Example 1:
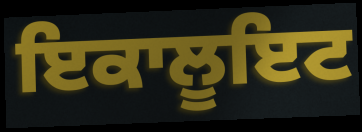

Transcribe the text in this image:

ਇਕਾਲੂਇਟ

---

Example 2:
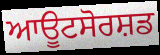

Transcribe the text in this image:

ਆਊਟਸੋਰਸ਼ਡ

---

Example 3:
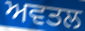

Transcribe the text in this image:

ਅਵਤਲ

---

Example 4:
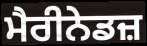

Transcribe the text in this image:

ਮੈਰੀਨੇਡਜ਼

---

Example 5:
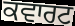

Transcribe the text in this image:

ਕਵਾਰਟ